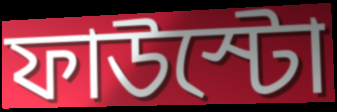
ফাউস্টো